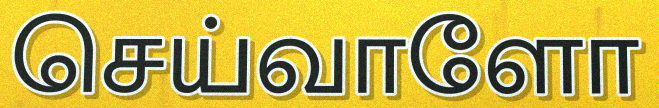
செய்வாளோ